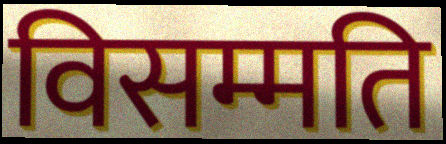
विसम्मति